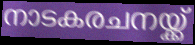
നാടകരചനയ്ക്ക്